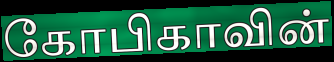
கோபிகாவின்